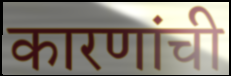
कारणांची